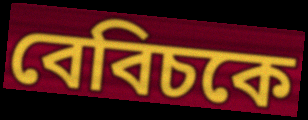
বেবিচকে